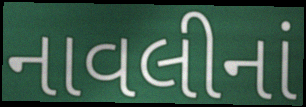
નાવલીનાં